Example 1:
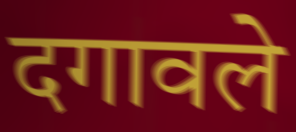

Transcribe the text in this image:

दगावले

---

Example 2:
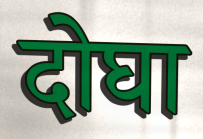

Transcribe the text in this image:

दोघा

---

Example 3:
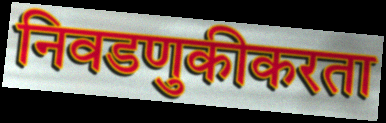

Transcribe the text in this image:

निवडणुकीकरता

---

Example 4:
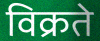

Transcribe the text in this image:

विक्रते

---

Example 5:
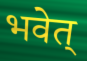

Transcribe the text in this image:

भवेत्